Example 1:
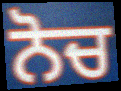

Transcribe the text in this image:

ਨੋਚ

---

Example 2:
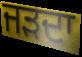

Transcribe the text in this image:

ਜੜਦਾ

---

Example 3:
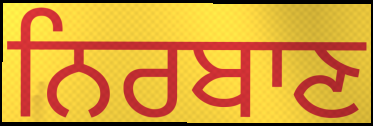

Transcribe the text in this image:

ਨਿਰਬਾਣ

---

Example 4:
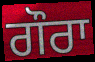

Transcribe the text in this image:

ਗੌਰਾ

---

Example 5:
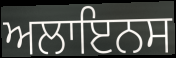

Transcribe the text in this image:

ਅਲਾਇਨਸ